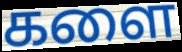
களை